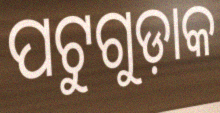
ପଟୁଗୁଡ଼ାକ